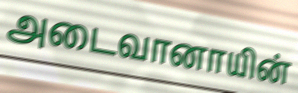
அடைவானாயின்